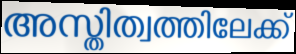
അസ്തിത്വത്തിലേക്ക്